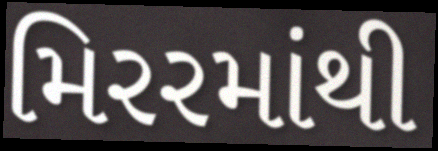
મિરરમાંથી